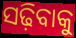
ସଢ଼ିବାକୁ